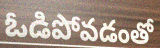
ఓడిపోవడంతో